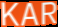
KAR